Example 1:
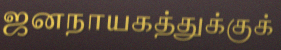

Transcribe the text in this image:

ஜனநாயகத்துக்குக்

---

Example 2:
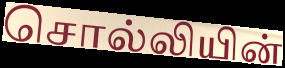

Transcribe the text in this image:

சொல்லியின்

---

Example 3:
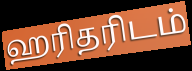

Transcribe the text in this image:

ஹரிதரிடம்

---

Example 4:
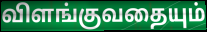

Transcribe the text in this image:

விளங்குவதையும்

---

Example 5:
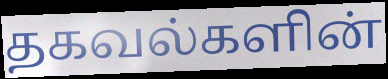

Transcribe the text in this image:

தகவல்களின்